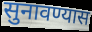
सुनावण्यास